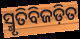
ସ୍ମୃତିବିଜଡ଼ିତ